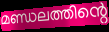
മണ്ഡലത്തിന്റെ